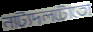
নাট্যদলটোতো